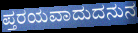
ಪ್ತರಯವಾದುದನುನ